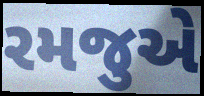
રમજુએ